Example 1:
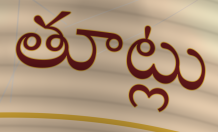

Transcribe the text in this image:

తూట్లు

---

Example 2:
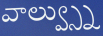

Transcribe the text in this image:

వాల్వ్స్ను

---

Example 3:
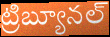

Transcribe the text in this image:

ట్రిబ్యూనల్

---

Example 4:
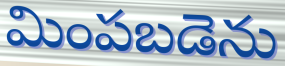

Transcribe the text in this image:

మింపబడెను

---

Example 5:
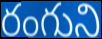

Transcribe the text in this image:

రంగుని